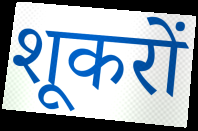
शूकरों